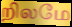
றிலமே